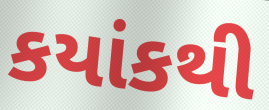
કયાંકથી